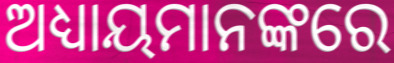
ଅଧ୍ୟାୟମାନଙ୍କରେ